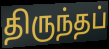
திருந்தப்